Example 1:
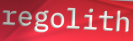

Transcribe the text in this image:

regolith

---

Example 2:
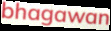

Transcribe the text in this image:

bhagawan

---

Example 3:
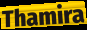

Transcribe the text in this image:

Thamira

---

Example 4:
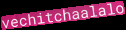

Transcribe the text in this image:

vechitchaalalo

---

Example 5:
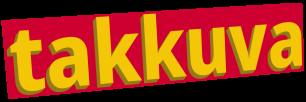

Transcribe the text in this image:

takkuva